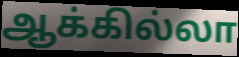
ஆக்கில்லா